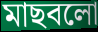
মাছবলো